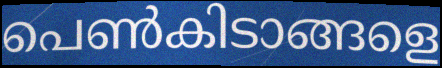
പെൺകിടാങ്ങളെ